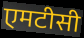
एमटीसी